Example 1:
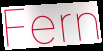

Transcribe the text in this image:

Fern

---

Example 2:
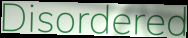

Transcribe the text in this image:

Disordered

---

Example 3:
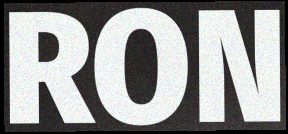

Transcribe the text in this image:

RON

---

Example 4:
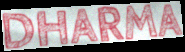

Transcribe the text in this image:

DHARMA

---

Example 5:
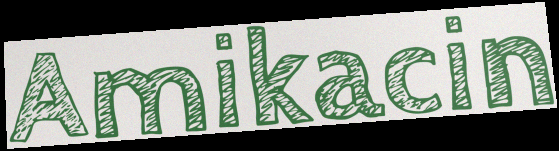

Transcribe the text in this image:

Amikacin